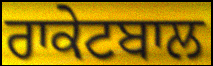
ਰਾਕੇਟਬਾਲ